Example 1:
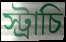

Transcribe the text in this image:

স্ট্রাচি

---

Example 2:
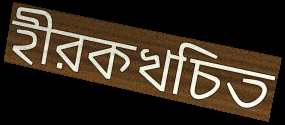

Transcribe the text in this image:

হীরকখচিত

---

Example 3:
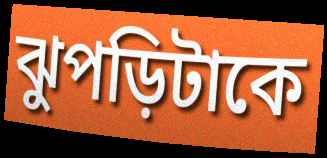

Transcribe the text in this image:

ঝুপড়িটাকে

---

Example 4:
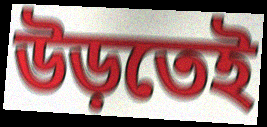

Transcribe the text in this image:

উড়তেই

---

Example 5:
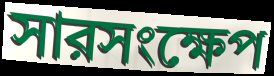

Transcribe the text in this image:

সারসংক্ষেপ